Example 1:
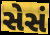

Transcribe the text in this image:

સેસં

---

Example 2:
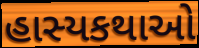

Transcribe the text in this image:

હાસ્યકથાઓ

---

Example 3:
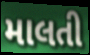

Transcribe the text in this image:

માલતી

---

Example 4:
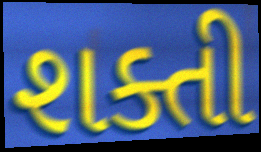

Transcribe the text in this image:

શક્તી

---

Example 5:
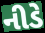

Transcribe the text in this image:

નીડે